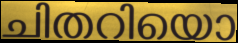
ചിതറിയൊ